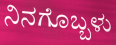
ನಿನಗೊಬ್ಬಳು